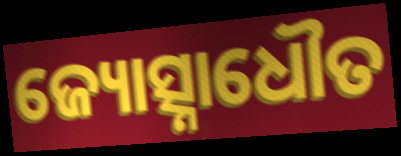
ଜ୍ୟୋତ୍ସ୍ନାଧୌତ